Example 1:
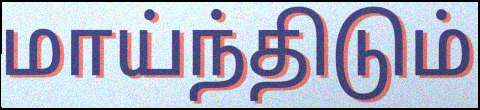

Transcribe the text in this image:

மாய்ந்திடும்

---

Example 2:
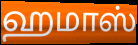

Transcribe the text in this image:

ஹமாஸ்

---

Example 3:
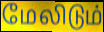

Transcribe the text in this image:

மேலிடும்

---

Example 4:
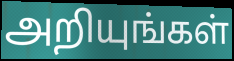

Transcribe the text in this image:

அறியுங்கள்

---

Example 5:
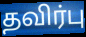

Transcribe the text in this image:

தவிர்பு